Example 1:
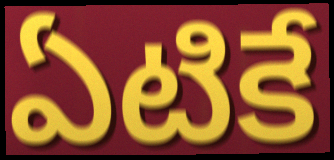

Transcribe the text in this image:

ఏటికే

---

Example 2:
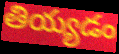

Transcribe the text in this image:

తియ్యడం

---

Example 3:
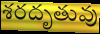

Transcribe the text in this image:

శరదృతువు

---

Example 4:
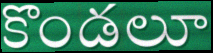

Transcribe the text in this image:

కొండలూ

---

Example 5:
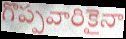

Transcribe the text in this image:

గొప్పవారికైనా